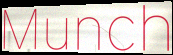
Munch